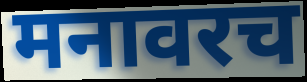
मनावरच